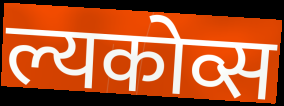
ल्यकोव्स